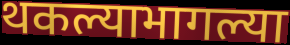
थकल्याभागल्या